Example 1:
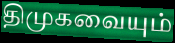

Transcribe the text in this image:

திமுகவையும்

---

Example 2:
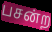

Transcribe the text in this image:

பசன்ற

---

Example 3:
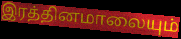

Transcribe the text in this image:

இரத்தினமாலையும்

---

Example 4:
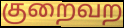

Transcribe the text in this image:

குறைவற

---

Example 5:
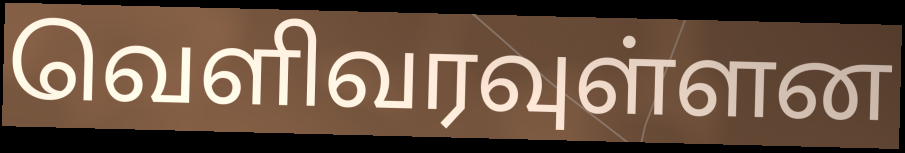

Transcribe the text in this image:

வெளிவரவுள்ளன